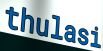
thulasi